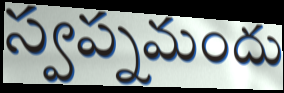
స్వప్నమందు